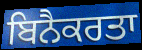
ਬਿਨੈਕਰਤਾ